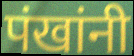
पंखांनी